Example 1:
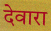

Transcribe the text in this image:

देवारा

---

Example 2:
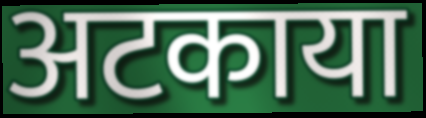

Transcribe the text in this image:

अटकाया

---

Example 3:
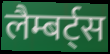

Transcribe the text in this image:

लैम्बर्ट्स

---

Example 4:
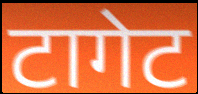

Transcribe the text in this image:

टागेट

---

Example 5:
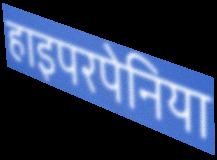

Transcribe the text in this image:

हाइपरपेनिया